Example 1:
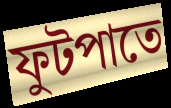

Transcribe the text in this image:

ফুটপাতে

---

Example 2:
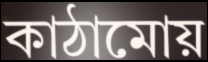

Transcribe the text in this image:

কাঠামোয়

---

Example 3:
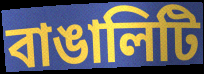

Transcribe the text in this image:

বাঙালিটি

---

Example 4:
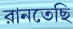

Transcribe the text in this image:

রানতেছি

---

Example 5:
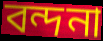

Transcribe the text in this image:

বন্দনা